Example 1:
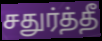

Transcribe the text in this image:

சதுர்த்தீ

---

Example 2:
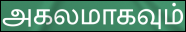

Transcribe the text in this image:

அகலமாகவும்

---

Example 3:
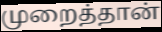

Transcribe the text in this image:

முறைத்தான்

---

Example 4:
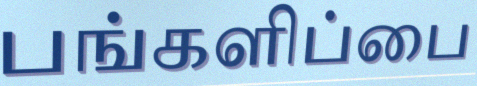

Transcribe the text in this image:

பங்களிப்பை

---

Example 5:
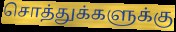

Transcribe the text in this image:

சொத்துக்களுக்கு